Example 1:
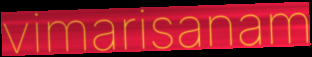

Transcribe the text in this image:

vimarisanam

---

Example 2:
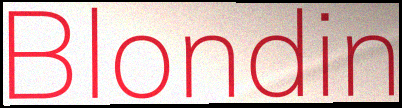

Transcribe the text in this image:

Blondin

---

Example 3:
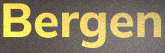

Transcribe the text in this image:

Bergen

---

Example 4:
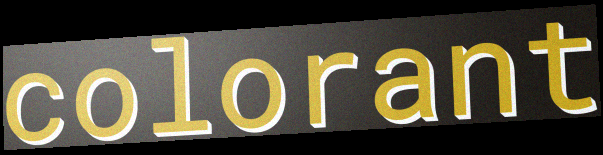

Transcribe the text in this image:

colorant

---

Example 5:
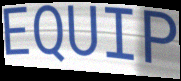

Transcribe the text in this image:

EQUIP